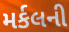
મર્કલની